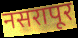
नसरापूर